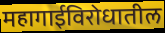
महागाईविरोधातील